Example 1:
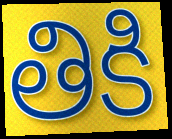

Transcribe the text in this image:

తికి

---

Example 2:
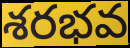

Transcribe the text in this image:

శరభవ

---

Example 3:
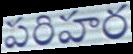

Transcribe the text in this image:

పరిహర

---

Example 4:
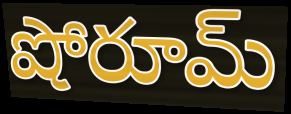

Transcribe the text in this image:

షోరూమ్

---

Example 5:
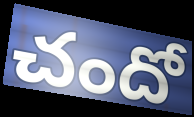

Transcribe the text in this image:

చందో